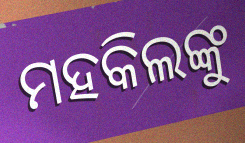
ମହକିଲଙ୍କୁ